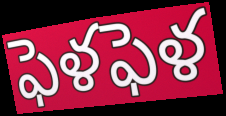
ఫెళఫెళ